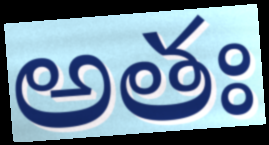
అతః